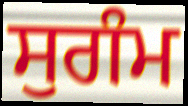
ਸੁਗੰਮ